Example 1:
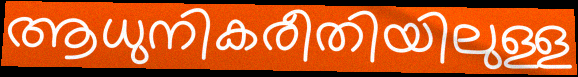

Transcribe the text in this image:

ആധുനികരീതിയിലുള്ള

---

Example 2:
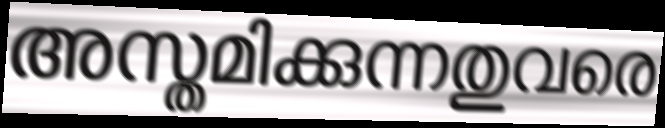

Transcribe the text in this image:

അസ്തമിക്കുന്നതുവരെ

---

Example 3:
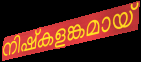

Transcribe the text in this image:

നിഷ്കളങ്കമായ്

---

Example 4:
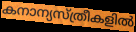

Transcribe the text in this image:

കനാന്യസ്ത്രീകളിൽ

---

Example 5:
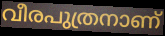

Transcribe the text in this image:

വീരപുത്രനാണ്